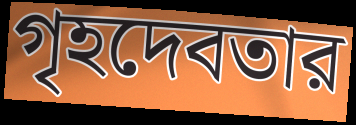
গৃহদেবতার